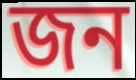
জন